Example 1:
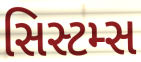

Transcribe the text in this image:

સિસ્ટમ્સ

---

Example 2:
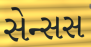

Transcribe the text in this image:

સેન્સસ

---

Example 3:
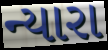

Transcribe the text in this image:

ન્યારા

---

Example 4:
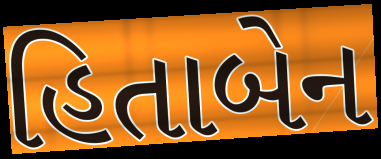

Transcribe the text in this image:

હિતાબેન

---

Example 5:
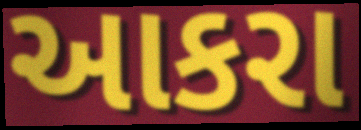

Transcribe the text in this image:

આકરા